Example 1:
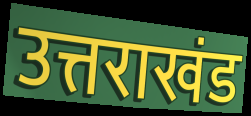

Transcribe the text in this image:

उत्तराखंड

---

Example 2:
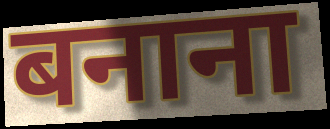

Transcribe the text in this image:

बनाना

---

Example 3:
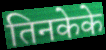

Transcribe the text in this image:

तिनकेके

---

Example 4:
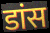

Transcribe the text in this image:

डांस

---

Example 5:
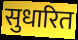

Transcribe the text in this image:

सुधारित